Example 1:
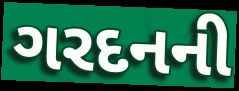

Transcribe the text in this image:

ગરદનની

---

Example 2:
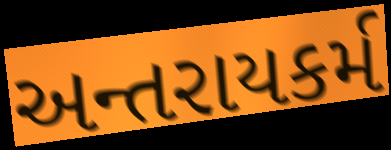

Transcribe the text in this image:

અન્તરાયકર્મ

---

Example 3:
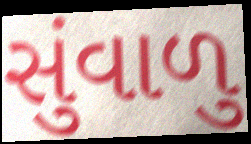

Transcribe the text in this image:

સુંવાળુ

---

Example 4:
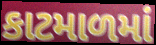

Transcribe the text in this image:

કાટમાળમાં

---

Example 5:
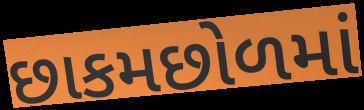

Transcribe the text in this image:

છાકમછોળમાં